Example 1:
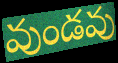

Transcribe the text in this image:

వుండవు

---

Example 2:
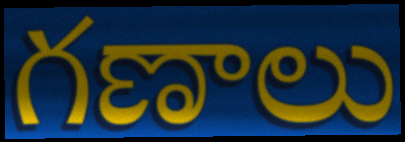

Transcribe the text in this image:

గణాలు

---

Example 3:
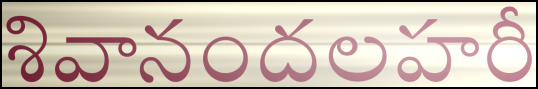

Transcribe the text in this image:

శివానందలహరీ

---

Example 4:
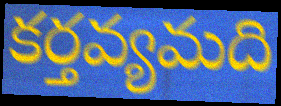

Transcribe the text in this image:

కర్తవ్యమది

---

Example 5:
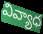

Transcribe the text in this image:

వివ్యాధ